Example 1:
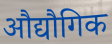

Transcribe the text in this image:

औद्यौगिक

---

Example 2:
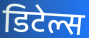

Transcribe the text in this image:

डिटेल्स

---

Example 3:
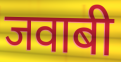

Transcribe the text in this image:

जवाबी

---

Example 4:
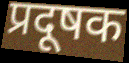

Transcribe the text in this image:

प्रदूषक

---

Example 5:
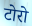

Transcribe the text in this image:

टोरो